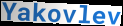
Yakovlev